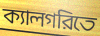
ক্যালগরিতে